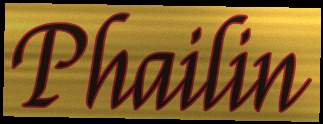
Phailin